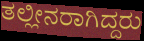
ತಲ್ಲೀನರಾಗಿದ್ದರು